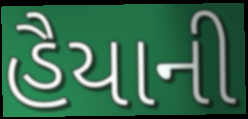
હૈયાની